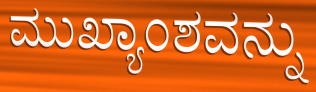
ಮುಖ್ಯಾಂಶವನ್ನು